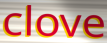
clove